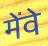
मेंवे